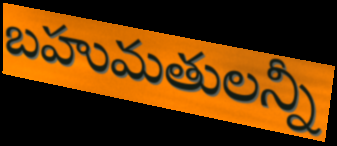
బహుమతులన్నీ